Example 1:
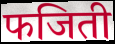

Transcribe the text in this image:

फजिती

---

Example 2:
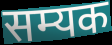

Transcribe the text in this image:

सम्यक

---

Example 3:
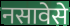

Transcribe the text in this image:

नसावेसे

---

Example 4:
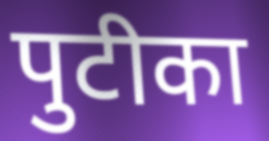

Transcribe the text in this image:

पुटीका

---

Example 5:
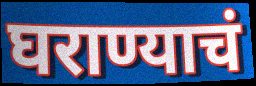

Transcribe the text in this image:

घराण्याचं